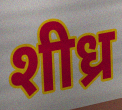
शीध्र